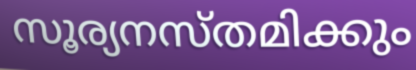
സൂര്യനസ്തമിക്കും